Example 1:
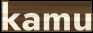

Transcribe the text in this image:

kamu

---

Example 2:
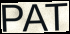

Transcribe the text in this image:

PAT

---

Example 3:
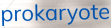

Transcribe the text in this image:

prokaryote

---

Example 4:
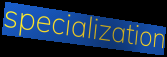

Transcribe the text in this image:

specialization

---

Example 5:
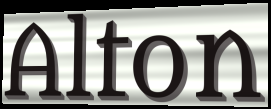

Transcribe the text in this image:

Alton